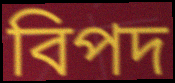
বিপদ